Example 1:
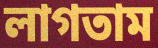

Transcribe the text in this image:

লাগতাম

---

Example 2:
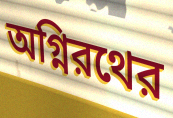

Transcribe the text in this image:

অগ্নিরথের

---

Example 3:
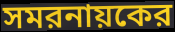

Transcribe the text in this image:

সমরনায়কের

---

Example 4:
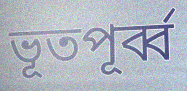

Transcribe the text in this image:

ভূতপূর্ব্ব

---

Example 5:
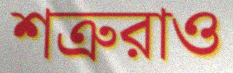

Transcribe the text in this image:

শত্রুরাও